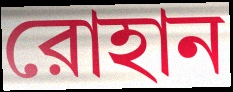
রোহান